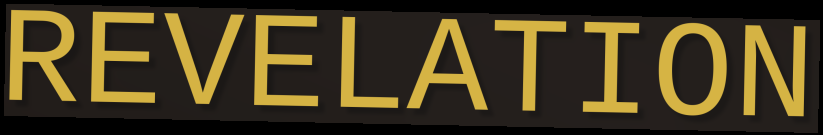
REVELATION